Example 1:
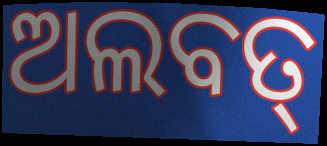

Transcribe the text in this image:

ଅଲବତ୍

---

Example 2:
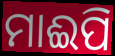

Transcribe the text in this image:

ମାଈପି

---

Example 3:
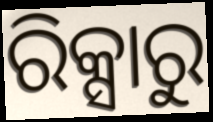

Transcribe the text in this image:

ରିକ୍ସାରୁ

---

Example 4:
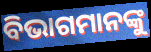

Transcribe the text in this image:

ବିଭାଗମାନଙ୍କୁ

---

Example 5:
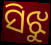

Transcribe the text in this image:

ସିଝୁ